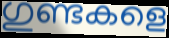
ഗുണ്ടകളെ